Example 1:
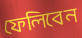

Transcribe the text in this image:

ফেলিবেন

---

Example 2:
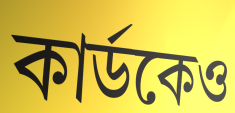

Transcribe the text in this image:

কার্ডকেও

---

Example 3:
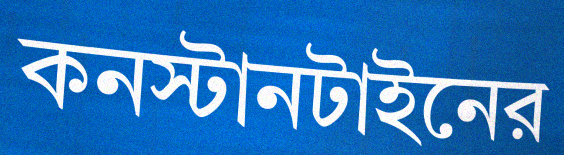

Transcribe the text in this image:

কনস্টানটাইনের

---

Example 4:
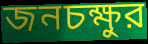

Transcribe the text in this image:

জনচক্ষুর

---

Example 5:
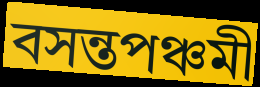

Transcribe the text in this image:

বসন্তপঞ্চমী